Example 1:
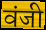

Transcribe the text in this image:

वंजी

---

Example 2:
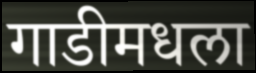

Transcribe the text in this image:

गाडीमधला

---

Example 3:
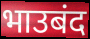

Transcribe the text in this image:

भाउबंद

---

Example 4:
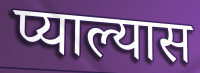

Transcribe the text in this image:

प्याल्यास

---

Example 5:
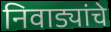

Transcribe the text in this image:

निवाड्यांचे